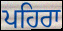
ਪਹਿਰਾ